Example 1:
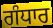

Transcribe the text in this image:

ਗੰਧਾਰ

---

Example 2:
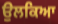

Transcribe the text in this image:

ਉਲਕਿਆ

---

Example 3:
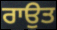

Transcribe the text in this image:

ਰਾਉਤ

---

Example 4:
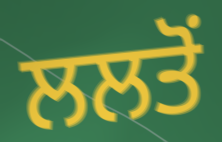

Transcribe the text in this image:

ਲਲਤੋਂ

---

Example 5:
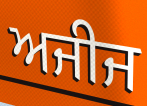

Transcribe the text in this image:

ਅਜੀਜ